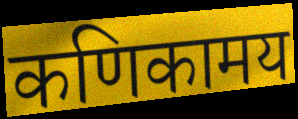
कणिकामय